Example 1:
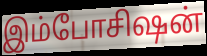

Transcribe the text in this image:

இம்போசிஷன்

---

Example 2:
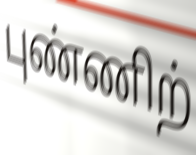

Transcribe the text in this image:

புண்ணிற்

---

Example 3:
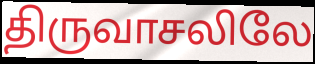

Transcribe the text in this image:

திருவாசலிலே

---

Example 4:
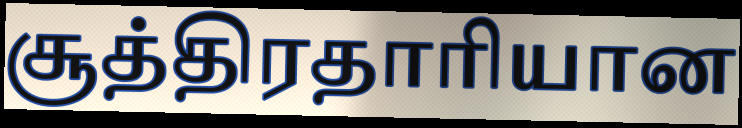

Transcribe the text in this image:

சூத்திரதாரியான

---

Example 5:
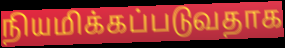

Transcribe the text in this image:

நியமிக்கப்படுவதாக